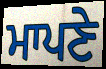
ਮਾਪਣੇ